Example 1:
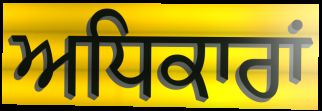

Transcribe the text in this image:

ਅਧਿਕਾਰਾਂ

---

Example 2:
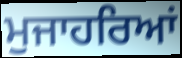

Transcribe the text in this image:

ਮੁਜਾਹਰਿਆਂ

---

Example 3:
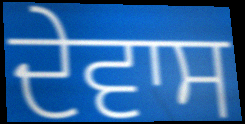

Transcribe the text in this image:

ਦੇਵਾਸ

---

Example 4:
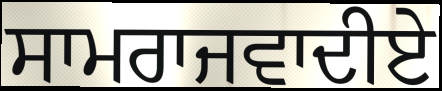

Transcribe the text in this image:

ਸਾਮਰਾਜਵਾਦੀਏ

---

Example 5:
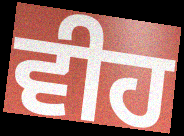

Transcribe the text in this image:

ਵੀਹ